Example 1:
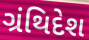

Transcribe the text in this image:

ગ્રંથિદેશ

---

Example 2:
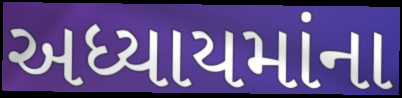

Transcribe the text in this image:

અધ્યાયમાંના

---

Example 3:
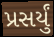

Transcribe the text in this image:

પ્રસર્યું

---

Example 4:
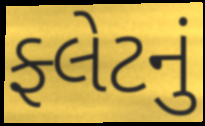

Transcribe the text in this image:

ફ્લેટનું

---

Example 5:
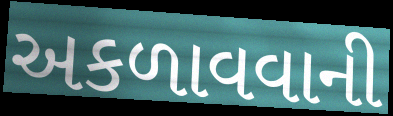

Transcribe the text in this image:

અકળાવવાની